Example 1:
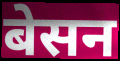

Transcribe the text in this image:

बेसन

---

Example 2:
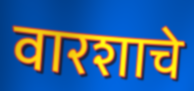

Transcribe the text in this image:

वारशाचे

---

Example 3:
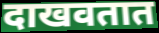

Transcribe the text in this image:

दाखवतात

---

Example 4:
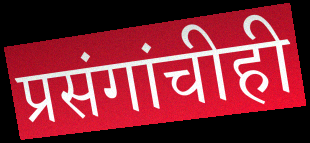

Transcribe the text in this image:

प्रसंगांचीही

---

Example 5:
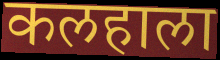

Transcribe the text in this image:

कलहाला